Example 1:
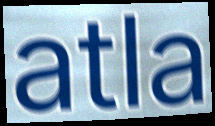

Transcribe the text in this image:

atla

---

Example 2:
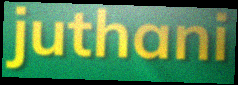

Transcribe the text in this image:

juthani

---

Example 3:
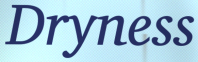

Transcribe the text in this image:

Dryness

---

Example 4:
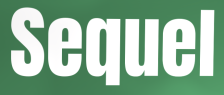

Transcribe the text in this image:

Sequel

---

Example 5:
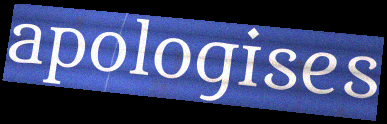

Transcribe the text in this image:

apologises